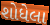
શોધેલા